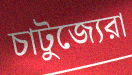
চাটুজ্যেরা